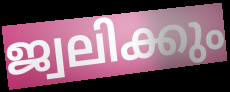
ജ്വലിക്കും